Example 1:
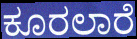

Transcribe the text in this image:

ಕೂರಲಾರೆ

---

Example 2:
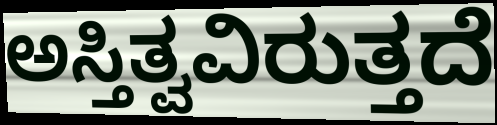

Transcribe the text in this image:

ಅಸ್ತಿತ್ವವಿರುತ್ತದೆ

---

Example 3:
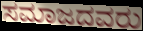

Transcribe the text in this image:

ಸಮಾಜದವರು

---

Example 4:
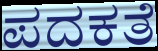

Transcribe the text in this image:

ಪದಕತೆ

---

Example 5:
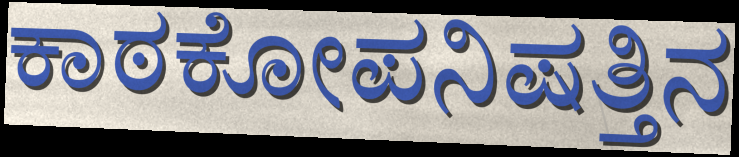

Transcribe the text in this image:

ಕಾಠಕೋಪನಿಷತ್ತಿನ